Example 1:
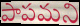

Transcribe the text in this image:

పాపమని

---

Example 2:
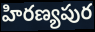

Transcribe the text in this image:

హిరణ్యపుర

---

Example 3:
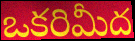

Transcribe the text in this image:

ఒకరిమీద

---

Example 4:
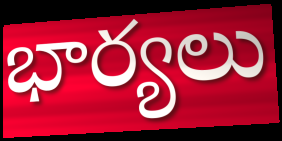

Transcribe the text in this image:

భార్యలు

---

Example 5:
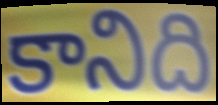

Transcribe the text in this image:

కానిది